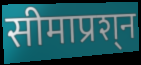
सीमाप्रश्न